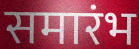
समारंभ